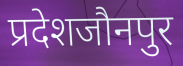
प्रदेशजौनपुर